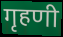
गृहणी